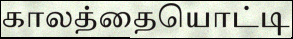
காலத்தையொட்டி